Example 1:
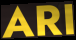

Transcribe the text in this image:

ARI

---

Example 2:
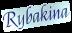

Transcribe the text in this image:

Rybakina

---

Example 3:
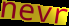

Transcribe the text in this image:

nevr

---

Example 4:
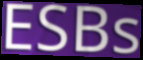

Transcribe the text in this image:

ESBs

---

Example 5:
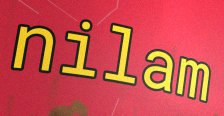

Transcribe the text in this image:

nilam